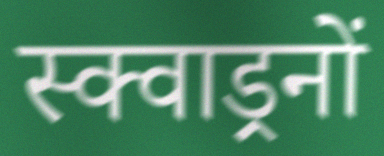
स्क्वाड्रनों